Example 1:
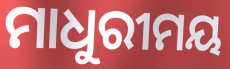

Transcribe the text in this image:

ମାଧୁରୀମୟ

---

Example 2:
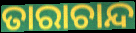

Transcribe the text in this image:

ତାରାଚାନ୍ଦ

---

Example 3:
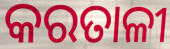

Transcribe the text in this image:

କରତାଳୀ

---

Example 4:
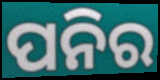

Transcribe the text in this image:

ପନିର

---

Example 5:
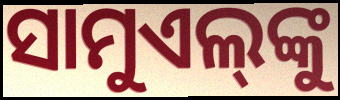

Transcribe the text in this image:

ସାମୁଏଲ୍‌ଙ୍କୁ